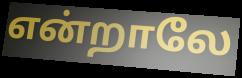
என்றாலே